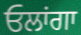
ਓਲਾਂਗਾ